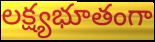
లక్ష్యభూతంగా